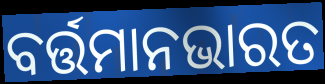
ବର୍ତ୍ତମାନଭାରତ